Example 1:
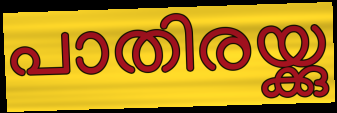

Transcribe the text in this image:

പാതിരയ്ക്കു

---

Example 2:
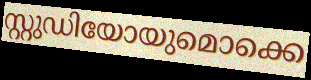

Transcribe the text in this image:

സ്റ്റുഡിയോയുമൊക്കെ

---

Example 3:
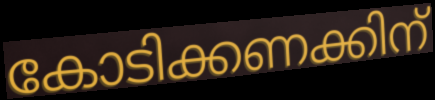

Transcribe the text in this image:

കോടിക്കണക്കിന്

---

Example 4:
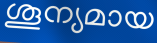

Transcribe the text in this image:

ശൂന്യമായ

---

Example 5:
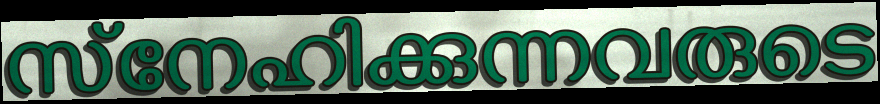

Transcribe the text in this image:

സ്‌നേഹിക്കുന്നവരുടെ